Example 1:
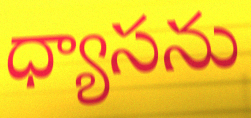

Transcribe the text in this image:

ధ్యాసను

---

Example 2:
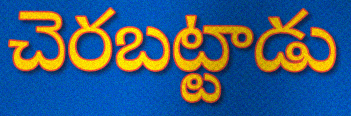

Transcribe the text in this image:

చెరబట్టాడు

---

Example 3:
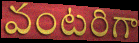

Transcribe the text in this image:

వంటరిగా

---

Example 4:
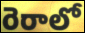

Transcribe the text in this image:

రెరాలో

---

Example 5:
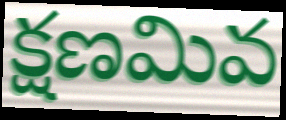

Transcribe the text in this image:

క్షణమివ